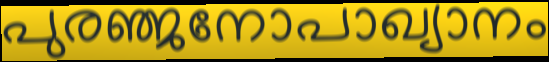
പുരഞ്ജനോപാഖ്യാനം